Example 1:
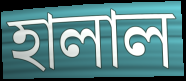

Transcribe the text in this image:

হালাল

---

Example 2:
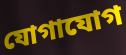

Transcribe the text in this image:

যোগাযোগ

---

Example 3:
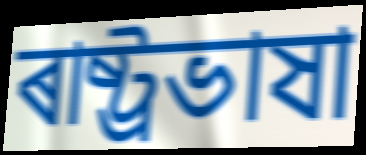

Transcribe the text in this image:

ৰাষ্ট্ৰভাষা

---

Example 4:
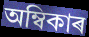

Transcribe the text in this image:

অম্বিকাৰ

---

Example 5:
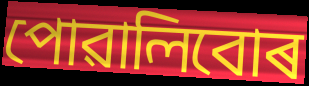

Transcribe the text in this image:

পোৱালিবোৰ